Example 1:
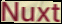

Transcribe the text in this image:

Nuxt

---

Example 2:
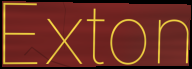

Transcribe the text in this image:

Exton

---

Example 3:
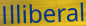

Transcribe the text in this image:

Illiberal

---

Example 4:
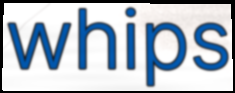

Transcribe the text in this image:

whips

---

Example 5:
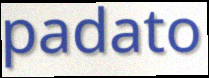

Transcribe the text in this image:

padato